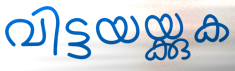
വിട്ടയയ്ക്കുക